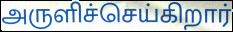
அருளிச்செய்கிறார்